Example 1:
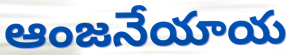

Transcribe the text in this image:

ఆంజనేయాయ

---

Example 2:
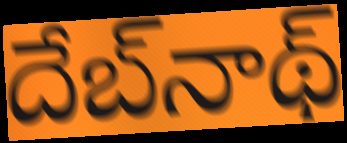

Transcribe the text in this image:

దేబ్‌నాథ్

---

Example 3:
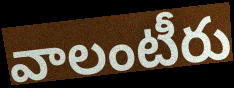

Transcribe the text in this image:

వాలంటీరు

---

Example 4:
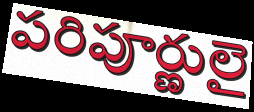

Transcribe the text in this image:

పరిపూర్ణులై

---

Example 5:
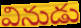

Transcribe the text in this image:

వినుడు